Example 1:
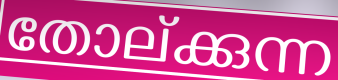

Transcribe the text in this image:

തോല്ക്കുന്ന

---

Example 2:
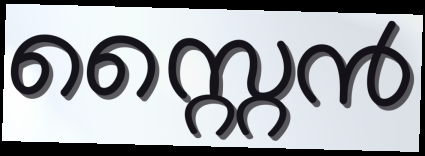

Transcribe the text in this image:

സ്റ്റൈൻ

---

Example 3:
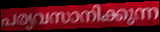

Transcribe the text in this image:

പര്യവസാനിക്കുന്ന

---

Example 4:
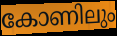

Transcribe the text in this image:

കോണിലും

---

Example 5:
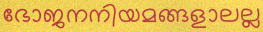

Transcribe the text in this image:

ഭോജനനിയമങ്ങളാലല്ല